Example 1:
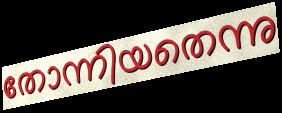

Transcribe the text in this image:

തോന്നിയതെന്നു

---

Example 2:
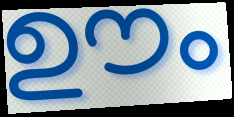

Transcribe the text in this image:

ഊം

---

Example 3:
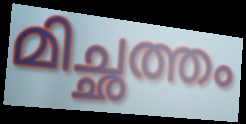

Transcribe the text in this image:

മിച്ഛത്തം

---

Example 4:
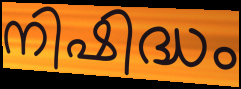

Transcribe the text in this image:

നിഷിദ്ധം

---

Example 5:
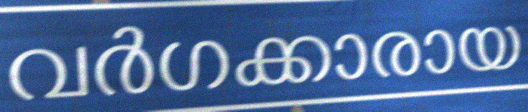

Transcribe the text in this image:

വർഗക്കാരായ